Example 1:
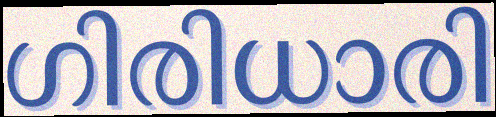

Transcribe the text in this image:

ഗിരിധാരി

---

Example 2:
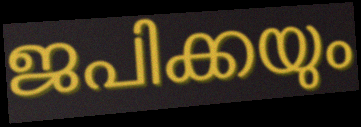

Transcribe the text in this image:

ജപിക്കയും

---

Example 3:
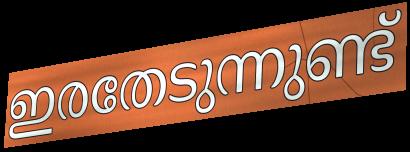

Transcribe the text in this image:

ഇരതേടുന്നുണ്ട്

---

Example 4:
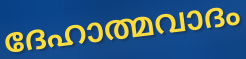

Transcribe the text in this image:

ദേഹാത്മവാദം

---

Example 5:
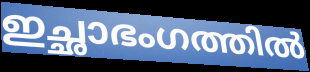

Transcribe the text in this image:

ഇച്ഛാഭംഗത്തിൽ